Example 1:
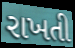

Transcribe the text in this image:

રાખતી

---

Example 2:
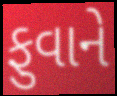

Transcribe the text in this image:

ફુવાને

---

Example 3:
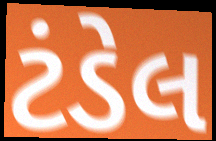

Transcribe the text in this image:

ટંડેલ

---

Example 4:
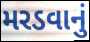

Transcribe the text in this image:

મરડવાનું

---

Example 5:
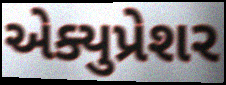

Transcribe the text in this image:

એક્યુપ્રેશર